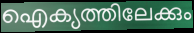
ഐക്യത്തിലേക്കും